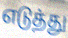
எடுத்து